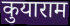
कुयाराम